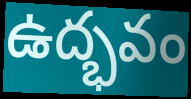
ఉద్భవం